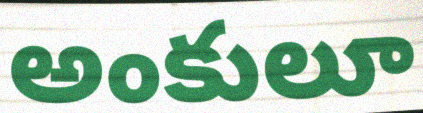
అంకులూ